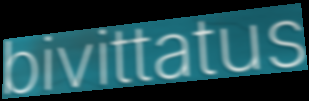
bivittatus